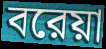
বরেয়া